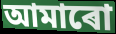
আমাৰো